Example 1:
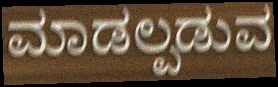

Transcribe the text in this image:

ಮಾಡಲ್ಪಡುವ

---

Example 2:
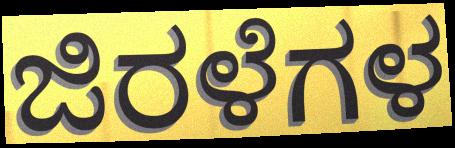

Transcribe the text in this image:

ಜಿರಳೆಗಳ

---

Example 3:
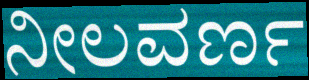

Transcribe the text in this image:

ನೀಲವರ್ಣ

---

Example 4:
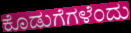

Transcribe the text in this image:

ಕೊಡುಗೆಗಳೆಂದು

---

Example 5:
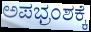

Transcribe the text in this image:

ಅಪಭ್ರಂಶಕ್ಕೆ